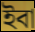
ইবা